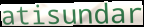
atisundar